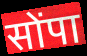
सोंपा